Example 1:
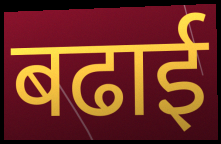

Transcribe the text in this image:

बढाई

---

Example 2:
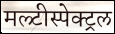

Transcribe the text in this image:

मल्टीस्पेक्ट्रल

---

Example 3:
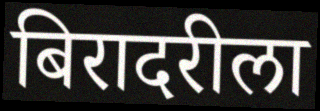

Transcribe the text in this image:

बिरादरीला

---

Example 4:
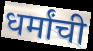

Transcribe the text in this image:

धर्मांची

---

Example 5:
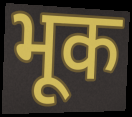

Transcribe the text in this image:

भूक